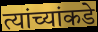
त्यांच्यांकडे